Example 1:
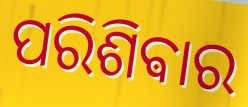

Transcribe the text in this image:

ପରିଶିଵାର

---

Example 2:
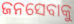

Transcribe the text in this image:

ଜନସେବାକୁ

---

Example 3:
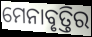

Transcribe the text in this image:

ମେନାବୃତ୍ତିର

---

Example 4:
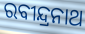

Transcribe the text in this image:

ରବୀନ୍ଦ୍ରନାଥ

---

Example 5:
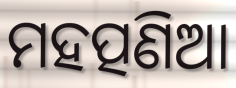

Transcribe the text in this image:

ମହତ୍ପଣିଆ